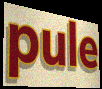
pule